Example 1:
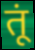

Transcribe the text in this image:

तूं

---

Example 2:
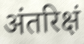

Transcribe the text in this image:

अंतरिक्षं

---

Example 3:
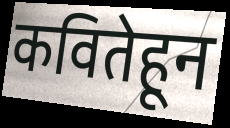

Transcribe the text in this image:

कवितेहून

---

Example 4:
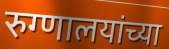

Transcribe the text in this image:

रुग्णालयांच्या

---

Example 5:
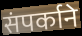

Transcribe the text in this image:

संपर्काने